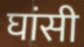
घांसी